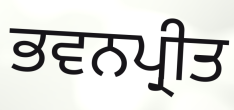
ਭਵਨਪ੍ਰੀਤ